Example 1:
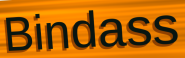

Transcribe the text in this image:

Bindass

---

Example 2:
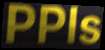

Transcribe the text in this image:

PPIs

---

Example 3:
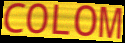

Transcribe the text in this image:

COLOM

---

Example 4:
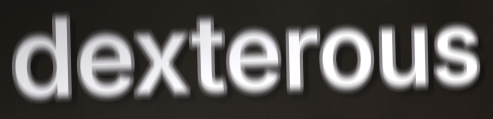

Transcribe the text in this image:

dexterous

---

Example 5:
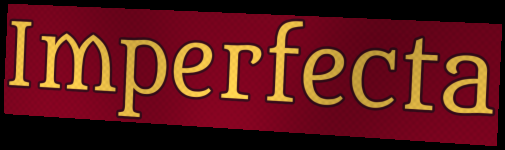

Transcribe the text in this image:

Imperfecta